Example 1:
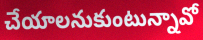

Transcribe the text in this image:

చేయాలనుకుంటున్నావో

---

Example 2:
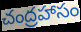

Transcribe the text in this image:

చంద్రహాసం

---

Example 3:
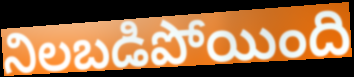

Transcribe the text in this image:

నిలబడిపోయింది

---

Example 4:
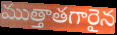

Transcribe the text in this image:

ముత్తాతగారైన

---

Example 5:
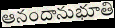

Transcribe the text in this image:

ఆనందానుభూతి